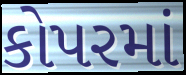
કોપરમાં